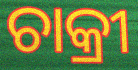
ଚାକ୍ରୀ